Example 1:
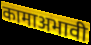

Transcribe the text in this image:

कामाअभावी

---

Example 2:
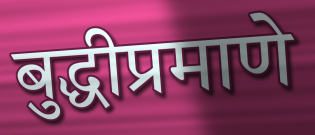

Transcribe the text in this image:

बुद्धीप्रमाणे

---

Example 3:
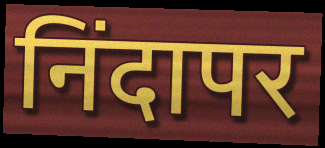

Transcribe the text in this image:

निंदापर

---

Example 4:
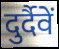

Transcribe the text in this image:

दुर्दैवें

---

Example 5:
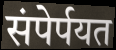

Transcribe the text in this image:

संपेर्पयत